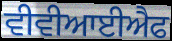
ਵੀਵੀਆਈਐਫ